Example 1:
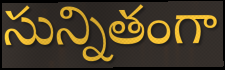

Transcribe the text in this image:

సున్నితంగా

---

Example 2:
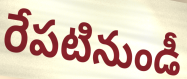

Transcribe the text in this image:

రేపటినుండీ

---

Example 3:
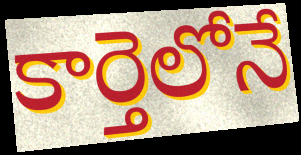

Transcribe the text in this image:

కార్తెలోనే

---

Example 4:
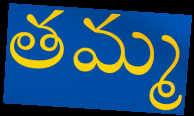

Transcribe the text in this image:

తమ్మ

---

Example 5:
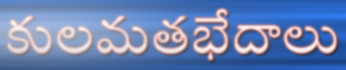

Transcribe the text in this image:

కులమతభేదాలు